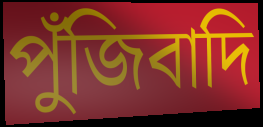
পুঁজিবাদি